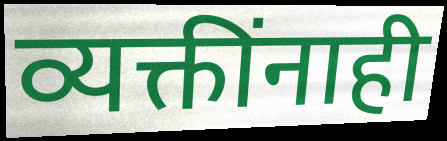
व्यक्तींनाही